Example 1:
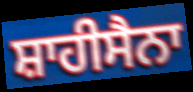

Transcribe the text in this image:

ਸ਼ਾਹੀਸੈਨਾ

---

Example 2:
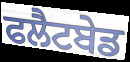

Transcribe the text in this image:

ਫਲੈਟਬੇਡ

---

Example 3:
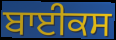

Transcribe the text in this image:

ਬਾਈਕਸ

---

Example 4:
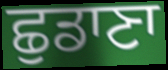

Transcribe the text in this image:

ਛੁਡਾਣਾ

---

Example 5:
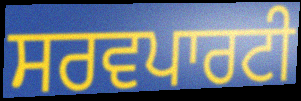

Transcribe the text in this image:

ਸਰਵਪਾਰਟੀ